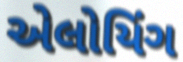
એલોયિંગ